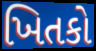
ખિતકો